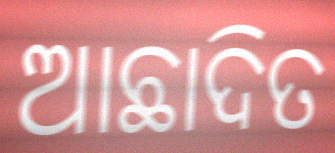
ଆଛାଦିତ